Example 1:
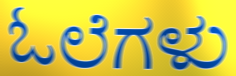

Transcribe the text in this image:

ಓಲೆಗಳು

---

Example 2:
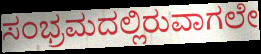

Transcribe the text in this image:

ಸಂಭ್ರಮದಲ್ಲಿರುವಾಗಲೇ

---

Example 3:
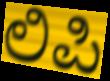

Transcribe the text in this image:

ಲಿಪಿ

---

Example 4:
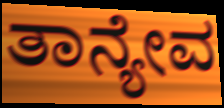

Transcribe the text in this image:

ತಾನ್ಯೇವ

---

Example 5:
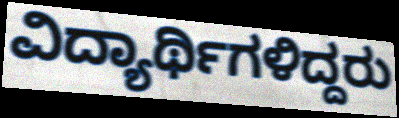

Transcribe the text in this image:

ವಿದ್ಯಾರ್ಥಿಗಳಿದ್ದರು